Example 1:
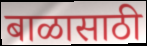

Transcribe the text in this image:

बाळासाठी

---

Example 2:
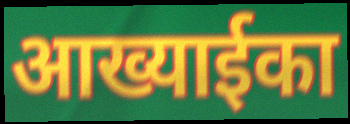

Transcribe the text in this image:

आख्याईका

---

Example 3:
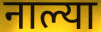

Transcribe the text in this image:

नाल्या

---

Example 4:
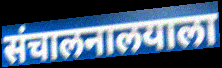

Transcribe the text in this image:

संचालनालयाला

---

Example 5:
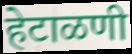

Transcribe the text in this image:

हेटाळणी